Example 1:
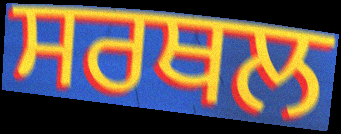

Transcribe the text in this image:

ਸਰਥਲ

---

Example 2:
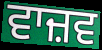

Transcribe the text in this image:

ਵਾਜ਼ਵ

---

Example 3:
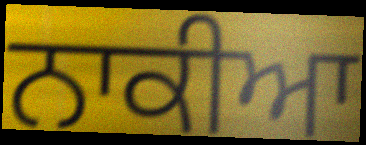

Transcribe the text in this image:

ਨਾਕੀਆ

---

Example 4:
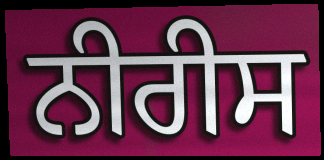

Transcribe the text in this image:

ਨੀਰੀਸ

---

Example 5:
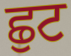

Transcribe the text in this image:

ਛੁਟ